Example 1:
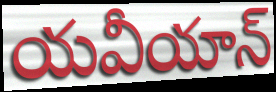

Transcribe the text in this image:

యవీయాన్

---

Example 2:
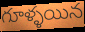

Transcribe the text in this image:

గూళ్ళయిన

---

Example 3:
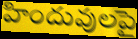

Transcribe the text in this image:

హిందువులపై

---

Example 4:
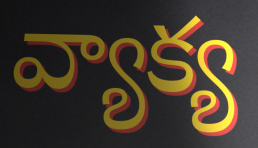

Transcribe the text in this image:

వ్యాక్య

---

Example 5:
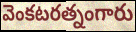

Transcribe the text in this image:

వెంకటరత్నంగారు